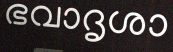
ഭവാദൃശാ